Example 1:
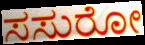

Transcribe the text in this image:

ಸಸುರೋ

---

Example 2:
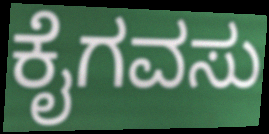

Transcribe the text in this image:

ಕೈಗವಸು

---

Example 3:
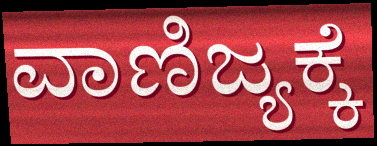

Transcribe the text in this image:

ವಾಣಿಜ್ಯಕ್ಕೆ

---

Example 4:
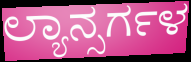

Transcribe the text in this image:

ಲ್ಯಾನ್ಸರ್ಗಳ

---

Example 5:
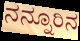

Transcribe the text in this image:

ನನ್ನೂರಿನ